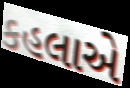
કહલાએ